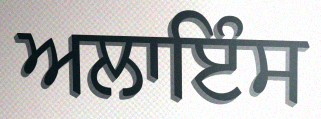
ਅਲਾਇੰਸ